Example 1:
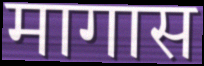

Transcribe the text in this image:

मागास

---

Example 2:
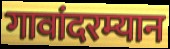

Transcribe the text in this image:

गावांदरम्यान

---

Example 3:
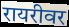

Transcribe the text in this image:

रायरीवर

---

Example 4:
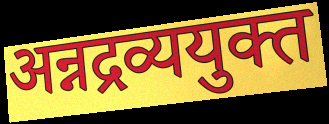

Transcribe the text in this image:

अन्नद्रव्ययुक्त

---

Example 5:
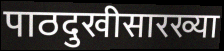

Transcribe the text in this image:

पाठदुखीसारख्या